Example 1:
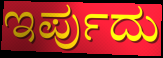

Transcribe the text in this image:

ಇರ್ಪುದು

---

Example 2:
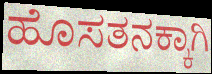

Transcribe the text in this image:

ಹೊಸತನಕ್ಕಾಗಿ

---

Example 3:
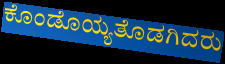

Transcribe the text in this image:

ಕೊಂಡೊಯ್ಯತೊಡಗಿದರು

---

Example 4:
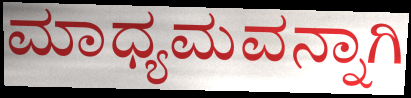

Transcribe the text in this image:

ಮಾಧ್ಯಮವನ್ನಾಗಿ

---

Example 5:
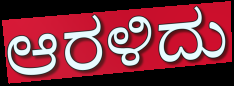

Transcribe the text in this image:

ಆರಳಿದು